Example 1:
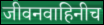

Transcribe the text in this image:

जीवनवाहिनीच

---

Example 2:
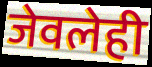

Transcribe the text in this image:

जेवलेही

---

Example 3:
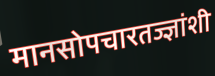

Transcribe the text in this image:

मानसोपचारतज्ज्ञांशी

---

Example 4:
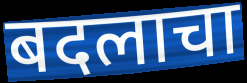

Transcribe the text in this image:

बदलाचा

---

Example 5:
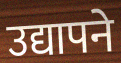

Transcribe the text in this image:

उद्यापने